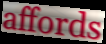
affords